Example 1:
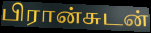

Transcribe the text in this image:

பிரான்சுடன்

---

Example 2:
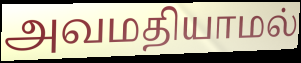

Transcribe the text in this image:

அவமதியாமல்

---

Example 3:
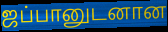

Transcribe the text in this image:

ஜப்பானுடனான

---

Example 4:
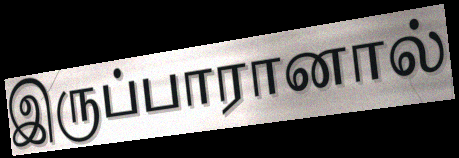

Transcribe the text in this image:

இருப்பாரானால்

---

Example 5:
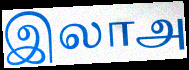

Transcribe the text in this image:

இலாஅ